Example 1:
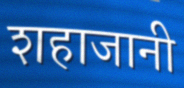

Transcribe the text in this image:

शहाजानी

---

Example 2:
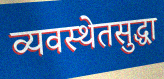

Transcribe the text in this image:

व्यवस्थेतसुद्धा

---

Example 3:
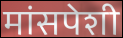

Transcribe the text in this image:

मांसपेशी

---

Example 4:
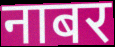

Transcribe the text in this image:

नाबर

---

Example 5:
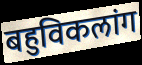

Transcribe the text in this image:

बहुविकलांग